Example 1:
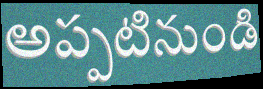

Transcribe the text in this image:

అప్పటినుండి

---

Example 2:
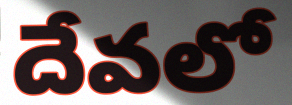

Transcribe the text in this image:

దేవలో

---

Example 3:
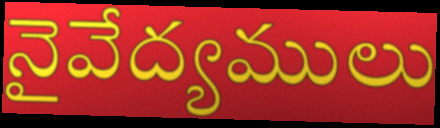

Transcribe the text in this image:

నైవేద్యములు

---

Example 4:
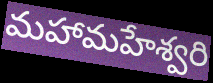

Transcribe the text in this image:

మహామహేశ్వరి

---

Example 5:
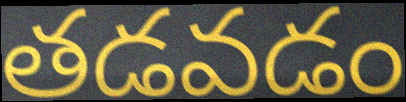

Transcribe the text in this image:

తడవడం